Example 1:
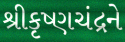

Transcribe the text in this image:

શ્રીકૃષ્ણચંદ્રને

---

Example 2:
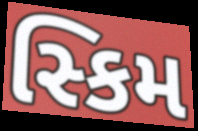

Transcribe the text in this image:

સ્કિમ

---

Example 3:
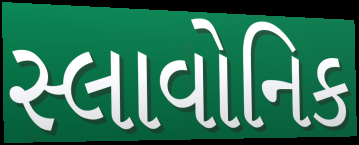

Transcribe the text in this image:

સ્લાવોનિક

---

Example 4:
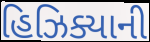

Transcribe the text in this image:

હિઝિક્યાની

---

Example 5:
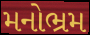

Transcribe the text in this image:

મનોભ્રમ